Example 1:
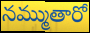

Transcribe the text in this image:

నమ్ముతారో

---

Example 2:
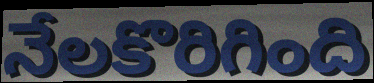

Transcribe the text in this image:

నేలకొరిగింది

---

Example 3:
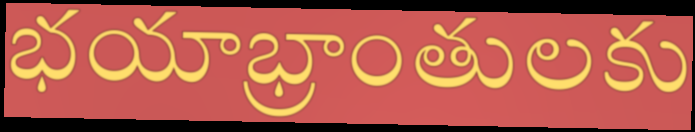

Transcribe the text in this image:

భయాభ్రాంతులకు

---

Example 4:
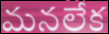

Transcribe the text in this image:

మనలేక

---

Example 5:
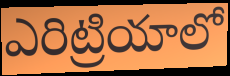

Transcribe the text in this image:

ఎరిట్రియాలో